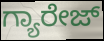
ಗ್ಯಾರೇಜ್